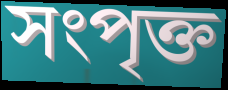
সংপৃক্ত